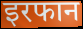
इरफान